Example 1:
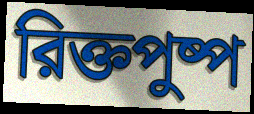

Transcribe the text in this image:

রিক্তপুষ্প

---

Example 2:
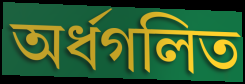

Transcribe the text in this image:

অর্ধগলিত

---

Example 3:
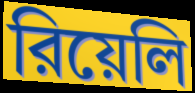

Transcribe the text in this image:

রিয়েলি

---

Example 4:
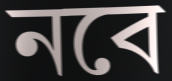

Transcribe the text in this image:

নবে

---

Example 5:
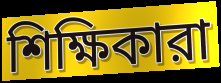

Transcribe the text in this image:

শিক্ষিকারা